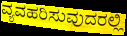
ವ್ಯವಹರಿಸುವುದರಲ್ಲಿ